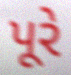
પૂરે